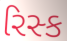
રિસ્ક